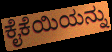
ಕೈಕೆಯಿಯನ್ನು